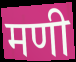
मणी